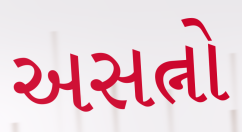
અસત્નો